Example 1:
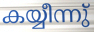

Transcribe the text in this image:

കയ്യീന്നു്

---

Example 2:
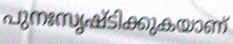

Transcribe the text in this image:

പുനഃസൃഷ്ടിക്കുകയാണ്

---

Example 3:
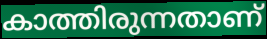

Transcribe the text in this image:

കാത്തിരുന്നതാണ്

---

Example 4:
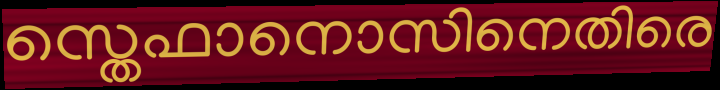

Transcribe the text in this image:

സ്തെഫാനൊസിനെതിരെ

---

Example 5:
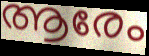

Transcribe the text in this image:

ആരേം